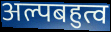
अल्पबहुत्व